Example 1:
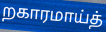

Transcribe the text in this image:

றகாரமாய்த்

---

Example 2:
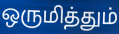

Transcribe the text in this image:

ஒருமித்தும்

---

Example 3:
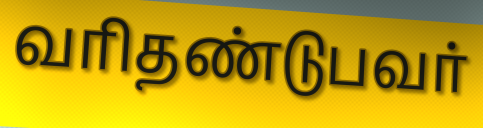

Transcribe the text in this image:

வரிதண்டுபவர்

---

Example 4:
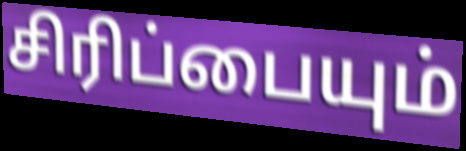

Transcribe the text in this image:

சிரிப்பையும்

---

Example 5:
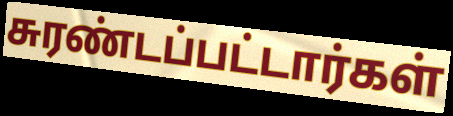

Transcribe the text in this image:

சுரண்டப்பட்டார்கள்